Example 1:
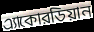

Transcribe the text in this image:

এ্যাকোরডিয়ান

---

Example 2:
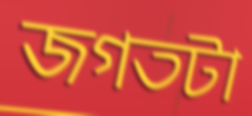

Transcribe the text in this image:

জগতটা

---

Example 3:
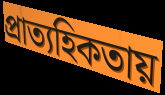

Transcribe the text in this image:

প্রাত্যহিকতায়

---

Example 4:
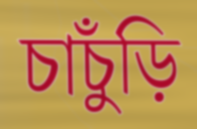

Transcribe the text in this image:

চাচুঁড়ি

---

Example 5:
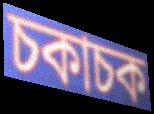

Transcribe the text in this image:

চকাচক